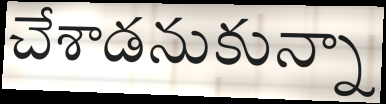
చేశాడనుకున్నా